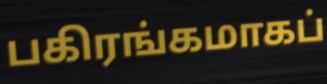
பகிரங்கமாகப்